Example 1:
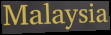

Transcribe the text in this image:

Malaysia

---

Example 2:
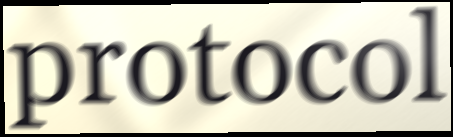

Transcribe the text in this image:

protocol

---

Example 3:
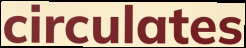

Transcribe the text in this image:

circulates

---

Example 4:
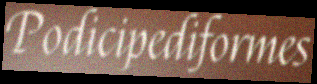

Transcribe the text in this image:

Podicipediformes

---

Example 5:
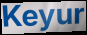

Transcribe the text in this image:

Keyur